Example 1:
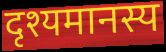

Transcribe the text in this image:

दृश्यमानस्य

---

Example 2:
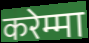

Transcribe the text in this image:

करेम्मा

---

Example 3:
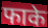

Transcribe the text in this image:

फाके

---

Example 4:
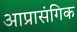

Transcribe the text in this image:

आप्रासंगिक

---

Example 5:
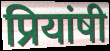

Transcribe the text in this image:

प्रियांषी